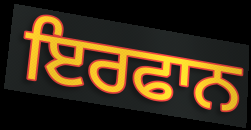
ਇਰਫਾਨ